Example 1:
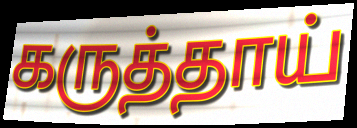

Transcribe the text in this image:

கருத்தாய்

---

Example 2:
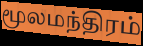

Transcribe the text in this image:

மூலமந்திரம்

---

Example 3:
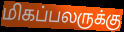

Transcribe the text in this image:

மிகப்பலருக்கு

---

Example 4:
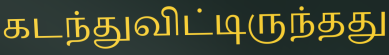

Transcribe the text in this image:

கடந்துவிட்டிருந்தது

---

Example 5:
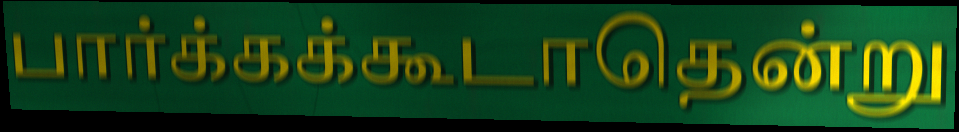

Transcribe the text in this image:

பார்க்கக்கூடாதென்று